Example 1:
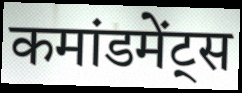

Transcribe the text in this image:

कमांडमेंट्स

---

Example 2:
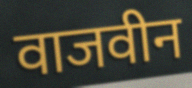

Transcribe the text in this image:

वाजवीन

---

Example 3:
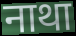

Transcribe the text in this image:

नाथा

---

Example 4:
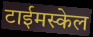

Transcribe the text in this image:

टाईमस्केल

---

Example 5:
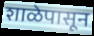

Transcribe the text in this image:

शाळेपासून